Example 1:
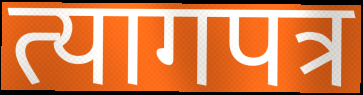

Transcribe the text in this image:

त्‍यागपत्र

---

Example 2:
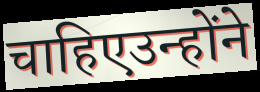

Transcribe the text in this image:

चाहिएउन्होंने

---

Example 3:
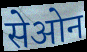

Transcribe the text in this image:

सेओन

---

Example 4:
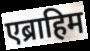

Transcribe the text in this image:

एब्राहिम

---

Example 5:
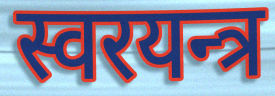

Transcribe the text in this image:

स्वरयन्त्र